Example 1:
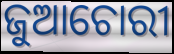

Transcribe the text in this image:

ଜୁଆଚୋରୀ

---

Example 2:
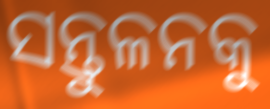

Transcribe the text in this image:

ସନ୍ତୁଳନକୁ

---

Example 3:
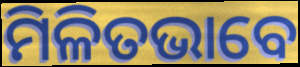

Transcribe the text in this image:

ମିଳିତଭାବେ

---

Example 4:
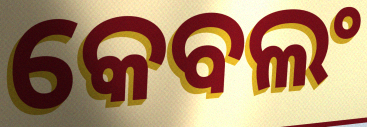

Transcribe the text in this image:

କେବଲଂ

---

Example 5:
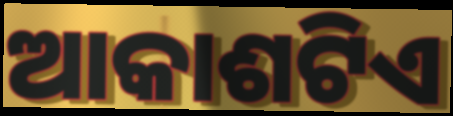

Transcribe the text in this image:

ଆକାଶଟିଏ